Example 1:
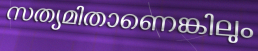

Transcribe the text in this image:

സത്യമിതാണെങ്കിലും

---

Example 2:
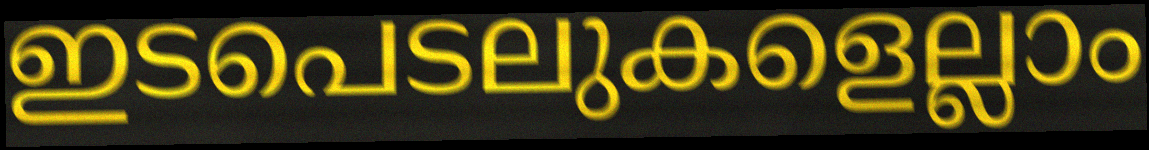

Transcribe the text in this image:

ഇടപെടലുകളെല്ലാം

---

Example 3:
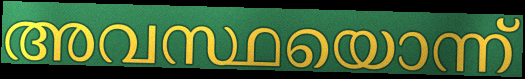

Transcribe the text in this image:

അവസ്ഥയൊന്ന്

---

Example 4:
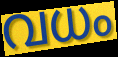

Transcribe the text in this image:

വധം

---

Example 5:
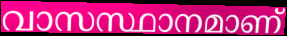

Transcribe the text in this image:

വാസസ്ഥാനമാണ്